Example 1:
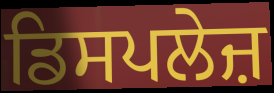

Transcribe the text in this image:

ਡਿਸਪਲੇਜ਼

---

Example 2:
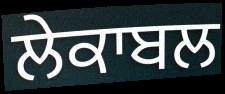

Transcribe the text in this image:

ਲੇਕਾਬਲ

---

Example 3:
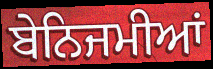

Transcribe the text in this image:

ਬੇਨਿਜਮੀਆਂ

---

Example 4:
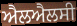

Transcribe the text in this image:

ਐਲਐਲਸੀ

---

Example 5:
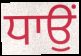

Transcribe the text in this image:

ਧਾਉਂ